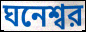
ঘনেশ্বর